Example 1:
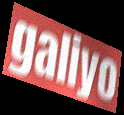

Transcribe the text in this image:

galiyo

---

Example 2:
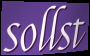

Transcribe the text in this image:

sollst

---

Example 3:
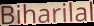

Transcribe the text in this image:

Biharilal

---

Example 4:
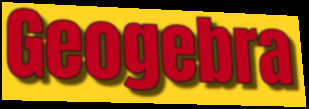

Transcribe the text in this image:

Geogebra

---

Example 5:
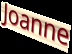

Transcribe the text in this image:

Joanne